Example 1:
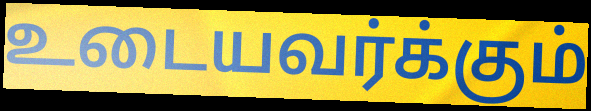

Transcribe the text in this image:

உடையவர்க்கும்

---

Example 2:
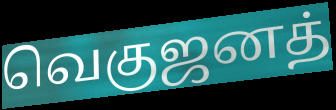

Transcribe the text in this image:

வெகுஜனத்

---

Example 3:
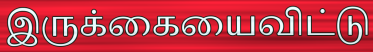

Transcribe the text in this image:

இருக்கையைவிட்டு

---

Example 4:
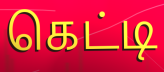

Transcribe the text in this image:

கெட்டி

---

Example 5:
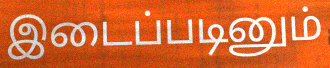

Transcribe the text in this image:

இடைப்படினும்